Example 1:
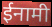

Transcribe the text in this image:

ईनामी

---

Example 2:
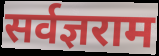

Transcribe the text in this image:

सर्वज्ञराम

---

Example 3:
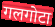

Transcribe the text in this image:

गलगोटा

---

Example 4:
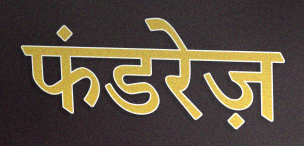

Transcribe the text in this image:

फंडरेज़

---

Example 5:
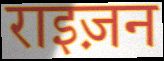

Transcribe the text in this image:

राइज़न